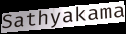
Sathyakama